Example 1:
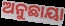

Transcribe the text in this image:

ଅନୁଛାୟା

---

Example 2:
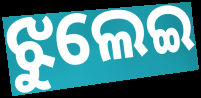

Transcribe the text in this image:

ଝୁଲେଇ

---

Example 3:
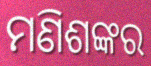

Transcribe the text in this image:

ମଣିଶଙ୍କର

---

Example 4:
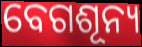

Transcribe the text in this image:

ବେଗଶୂନ୍ୟ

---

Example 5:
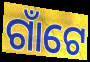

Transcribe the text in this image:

ଗାଁଟେ